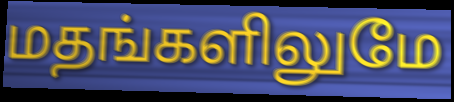
மதங்களிலுமே